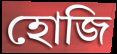
হোজি